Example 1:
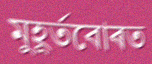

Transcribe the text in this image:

মুহূৰ্তবোৰত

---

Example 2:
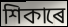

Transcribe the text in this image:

শিকাৰে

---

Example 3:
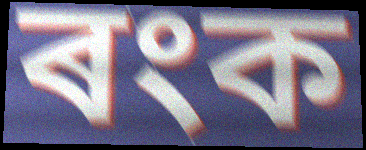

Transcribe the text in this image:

ৰংক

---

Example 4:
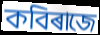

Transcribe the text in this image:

কবিৰাজে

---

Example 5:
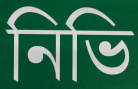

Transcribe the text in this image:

নিভি